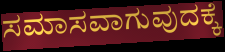
ಸಮಾಸವಾಗುವುದಕ್ಕೆ